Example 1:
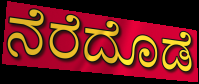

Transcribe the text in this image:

ನೆರೆದೊಡೆ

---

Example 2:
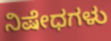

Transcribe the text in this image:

ನಿಷೇಧಗಳು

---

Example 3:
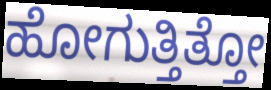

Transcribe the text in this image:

ಹೋಗುತ್ತಿತ್ತೋ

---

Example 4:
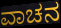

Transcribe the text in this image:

ವಾಚನ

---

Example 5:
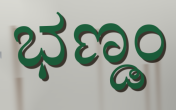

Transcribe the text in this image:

ಭಣ್ಡಂ